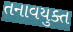
તનાવયુક્ત